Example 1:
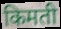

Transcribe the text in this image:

किमती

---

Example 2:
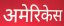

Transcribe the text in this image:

अमेरिकेस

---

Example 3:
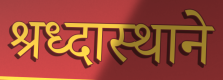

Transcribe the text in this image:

श्रध्दास्थाने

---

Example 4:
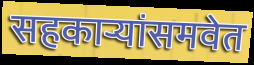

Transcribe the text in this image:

सहकाऱ्यांसमवेत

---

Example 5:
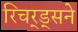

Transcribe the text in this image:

रिचर्ड्सने